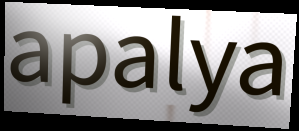
apalya